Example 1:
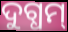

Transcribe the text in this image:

ଦୁଗ୍ଧମ୍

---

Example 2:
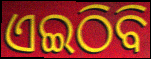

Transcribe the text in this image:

ଏଇଠିବି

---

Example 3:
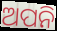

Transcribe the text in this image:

ଅପନି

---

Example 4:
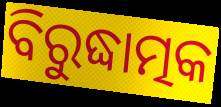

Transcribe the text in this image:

ବିରୁଦ୍ଧାତ୍ମକ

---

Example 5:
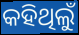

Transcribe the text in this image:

କହିଥିଲୁଁ